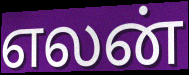
எலன்